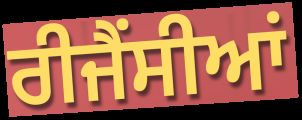
ਰੀਜੈਂਸੀਆਂ